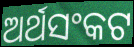
ଅର୍ଥସଂକଟ